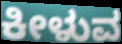
ಕೀಳುವ